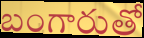
బంగారుతో